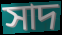
সাদ